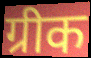
ग्रीक